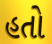
હતો